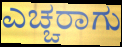
ಎಚ್ಚರಾಗು